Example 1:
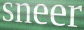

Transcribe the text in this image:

sneer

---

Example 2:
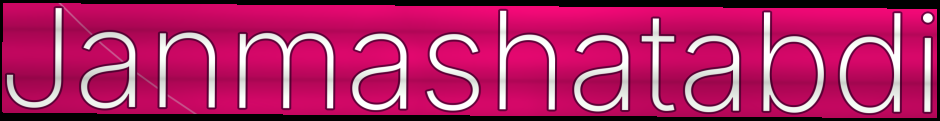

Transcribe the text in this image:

Janmashatabdi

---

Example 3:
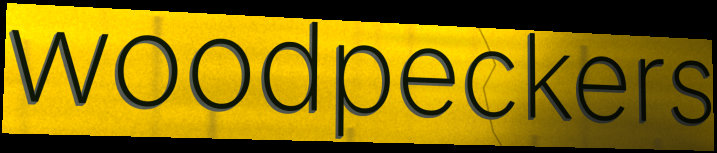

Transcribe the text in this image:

woodpeckers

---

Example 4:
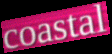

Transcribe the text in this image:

coastal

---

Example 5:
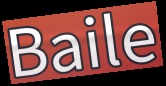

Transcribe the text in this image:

Baile